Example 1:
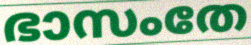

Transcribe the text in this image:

ഭാസംതേ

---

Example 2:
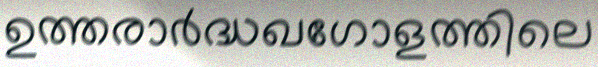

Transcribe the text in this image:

ഉത്തരാർദ്ധഖഗോളത്തിലെ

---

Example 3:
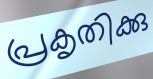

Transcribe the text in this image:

പ്രകൃതിക്കു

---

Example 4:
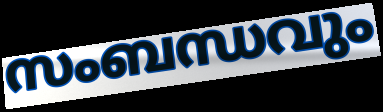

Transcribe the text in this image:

സംബന്ധവും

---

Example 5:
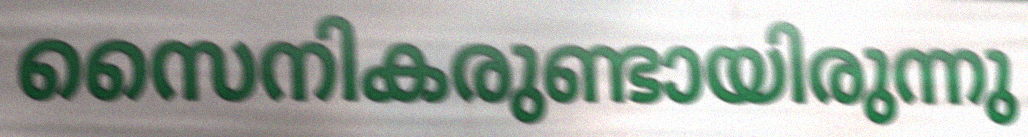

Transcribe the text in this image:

സൈനികരുണ്ടായിരുന്നു